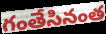
గంతేసినంత